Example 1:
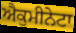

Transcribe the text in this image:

ਐਕੁਮੀਨੇਟਾ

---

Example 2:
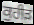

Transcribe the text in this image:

ਕੁਹੀੜ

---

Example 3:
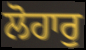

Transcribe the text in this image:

ਲੋਹਾਰੁ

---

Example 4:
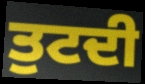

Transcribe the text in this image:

ਤੁਟਦੀ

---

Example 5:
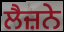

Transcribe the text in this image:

ਲੈਜ਼ਨੇ